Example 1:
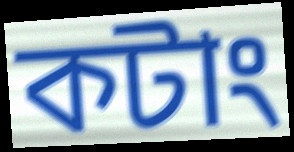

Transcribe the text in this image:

কটাং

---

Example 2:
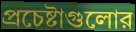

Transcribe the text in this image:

প্রচেষ্টাগুলোর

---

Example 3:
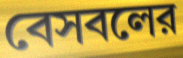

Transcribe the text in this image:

বেসবলের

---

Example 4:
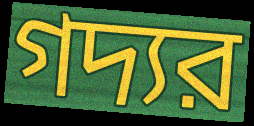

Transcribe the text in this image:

গদ্যর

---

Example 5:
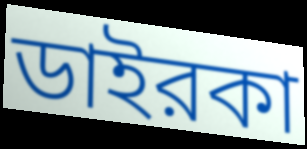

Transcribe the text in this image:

ডাইরকা